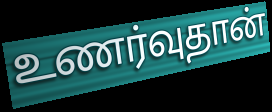
உணர்வுதான்